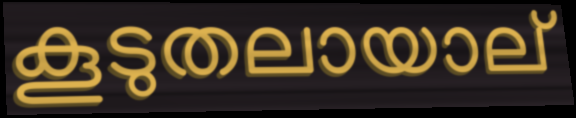
കൂടുതലായാല്